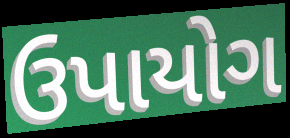
ઉપાયોગ